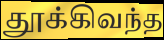
தூக்கிவந்த